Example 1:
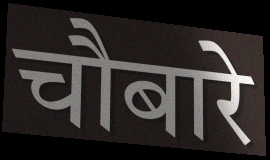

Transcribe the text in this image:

चौबारे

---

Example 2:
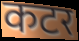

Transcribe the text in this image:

कटर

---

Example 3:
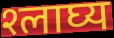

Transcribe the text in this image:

श्लाघ्य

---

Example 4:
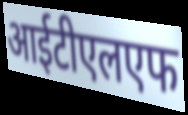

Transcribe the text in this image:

आईटीएलएफ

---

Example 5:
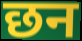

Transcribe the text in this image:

छन